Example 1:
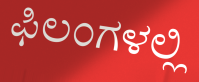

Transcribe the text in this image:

ಫಿಲಂಗಳಲ್ಲಿ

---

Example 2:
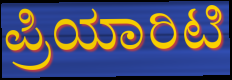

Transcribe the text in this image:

ಪ್ರಿಯಾರಿಟಿ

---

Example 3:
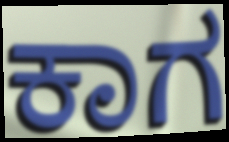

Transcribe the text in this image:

ಕಾಗ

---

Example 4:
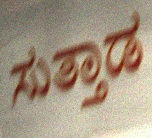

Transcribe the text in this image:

ಸುತ್ತಾಡ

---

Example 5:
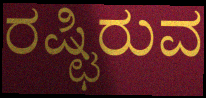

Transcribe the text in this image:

ರಷ್ಟಿರುವ